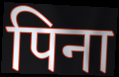
पिना